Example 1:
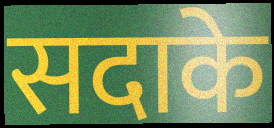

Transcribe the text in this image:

सदाके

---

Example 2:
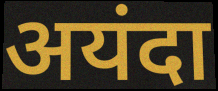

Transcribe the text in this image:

अयंदा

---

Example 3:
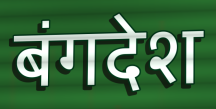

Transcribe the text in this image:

बंगदेश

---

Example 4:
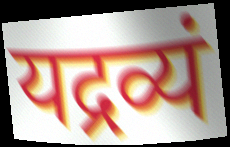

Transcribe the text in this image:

यद्रव्यं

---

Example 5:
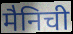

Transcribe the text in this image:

मैनिची